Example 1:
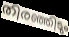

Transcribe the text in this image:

തിരഞ്ഞിടും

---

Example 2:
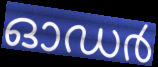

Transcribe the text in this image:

ഓഡർ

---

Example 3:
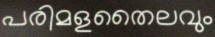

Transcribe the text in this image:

പരിമളതൈലവും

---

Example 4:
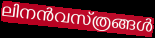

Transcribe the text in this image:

ലിനൻവസ്‌ത്രങ്ങൾ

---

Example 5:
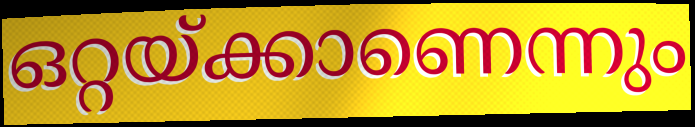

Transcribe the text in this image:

ഒറ്റയ്ക്കാണെന്നും